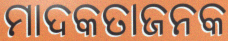
ମାଦକତାଜନକ